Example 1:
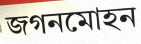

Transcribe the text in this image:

জগনমোহন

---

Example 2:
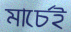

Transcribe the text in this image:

মার্চেই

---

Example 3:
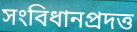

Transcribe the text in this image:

সংবিধানপ্রদত্ত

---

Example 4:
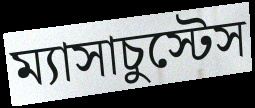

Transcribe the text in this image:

ম্যাসাচুস্টেস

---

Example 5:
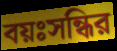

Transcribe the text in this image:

বয়ঃসন্ধির